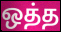
ஒத்த